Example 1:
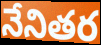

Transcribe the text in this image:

నేనితర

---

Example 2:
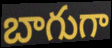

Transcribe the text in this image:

బాగుగా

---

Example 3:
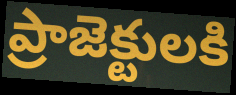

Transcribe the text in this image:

ప్రాజెక్టులకి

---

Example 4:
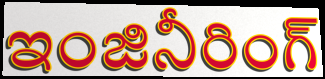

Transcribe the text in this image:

ఇంజినీరింగ్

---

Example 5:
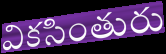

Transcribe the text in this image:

వికసింతురు